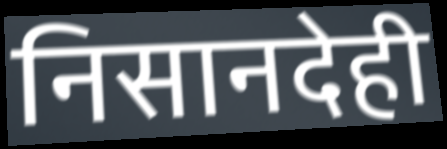
निसानदेही